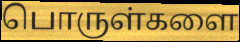
பொருள்களை